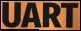
UART